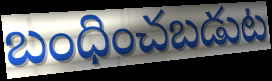
బంధించబడుట